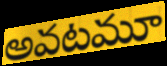
అవటమూ